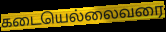
கடையெல்லைவரை